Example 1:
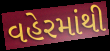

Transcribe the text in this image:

વહેરમાંથી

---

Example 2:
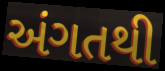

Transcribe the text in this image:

અંગતથી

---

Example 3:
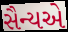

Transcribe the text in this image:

સૈન્યએ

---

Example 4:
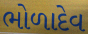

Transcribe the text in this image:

ભોળાદેવ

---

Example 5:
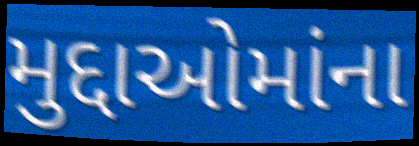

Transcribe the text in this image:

મુદ્દાઓમાંના